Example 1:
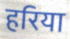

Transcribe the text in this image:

हरिया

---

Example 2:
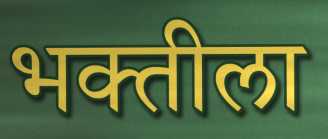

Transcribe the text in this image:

भक्तीला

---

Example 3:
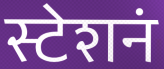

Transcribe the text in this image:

स्टेशनं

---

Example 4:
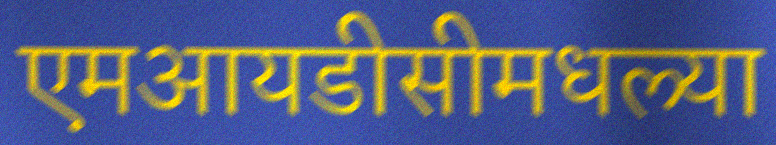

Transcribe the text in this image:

एमआयडीसीमधल्या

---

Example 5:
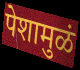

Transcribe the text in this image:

पेशामुळं